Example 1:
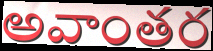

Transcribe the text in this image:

అవాంతర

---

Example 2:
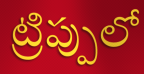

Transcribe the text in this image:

ట్రిప్పులో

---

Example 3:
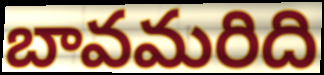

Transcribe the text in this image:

బావమరిది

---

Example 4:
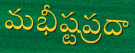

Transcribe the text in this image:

మభీష్టప్రదా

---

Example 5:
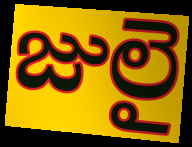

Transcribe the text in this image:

జులై